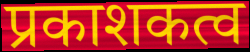
प्रकाशकत्व